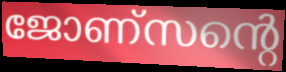
ജോണ്സന്റെ